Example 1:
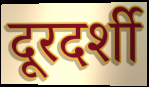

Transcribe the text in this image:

दूरदर्शी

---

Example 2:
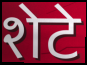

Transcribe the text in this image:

शेटे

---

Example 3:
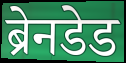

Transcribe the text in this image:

ब्रेनडेड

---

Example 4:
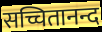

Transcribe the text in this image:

सच्चितानन्द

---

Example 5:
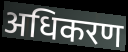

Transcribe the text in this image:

अधिकरण